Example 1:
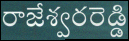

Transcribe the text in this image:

రాజేశ్వరరెడ్డి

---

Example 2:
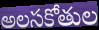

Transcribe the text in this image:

అలసకోతుల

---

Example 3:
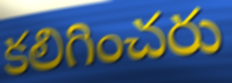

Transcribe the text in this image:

కలిగించరు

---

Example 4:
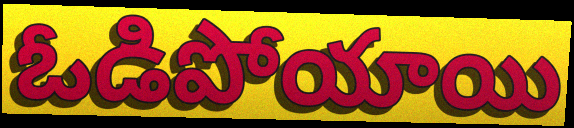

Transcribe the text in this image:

ఓడిపోయాయి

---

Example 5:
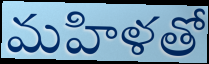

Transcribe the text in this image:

మహిళతో